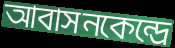
আবাসনকেন্দ্রে